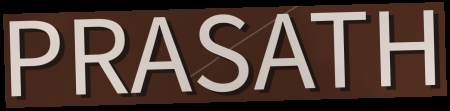
PRASATH